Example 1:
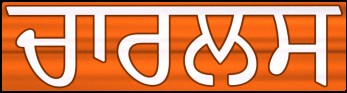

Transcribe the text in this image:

ਚਾਰਲਸ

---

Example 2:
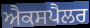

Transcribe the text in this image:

ਐਕਸਪੈਲਰ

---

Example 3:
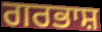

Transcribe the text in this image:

ਗਰਭਾਸ਼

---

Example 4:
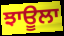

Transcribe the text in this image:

ਝਾਊਲਾ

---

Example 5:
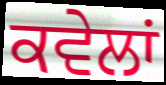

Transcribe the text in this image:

ਕਵੇਲਾਂ